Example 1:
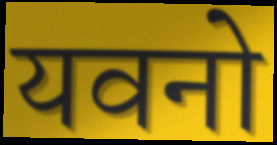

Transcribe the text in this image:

यवनो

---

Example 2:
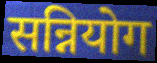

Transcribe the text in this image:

सन्नियोग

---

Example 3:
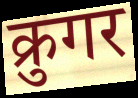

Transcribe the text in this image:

क्रुगर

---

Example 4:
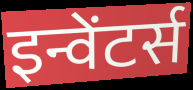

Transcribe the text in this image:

इन्वेंटर्स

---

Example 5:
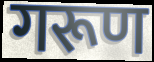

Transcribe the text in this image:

गरूण